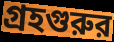
গ্রহগুরুর